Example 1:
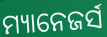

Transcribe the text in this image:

ମ୍ୟାନେଜର୍ସ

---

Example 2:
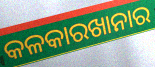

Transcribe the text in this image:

କଳକାରଖାନାର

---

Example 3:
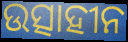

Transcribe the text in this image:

ଉତ୍ସାହୀନ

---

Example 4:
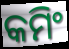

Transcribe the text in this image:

କମିଂ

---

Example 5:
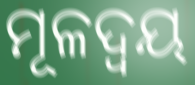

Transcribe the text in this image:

ମୂଳଦ୍ଵୟ